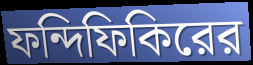
ফন্দিফিকিরের